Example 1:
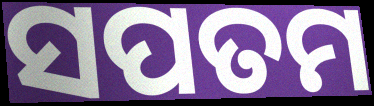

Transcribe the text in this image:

ସପତମ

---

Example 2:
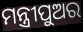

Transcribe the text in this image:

ମନ୍ତ୍ରୀପୁଅର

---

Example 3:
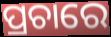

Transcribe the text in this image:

ପ୍ରଚାରେ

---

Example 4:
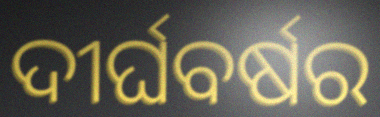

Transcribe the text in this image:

ଦୀର୍ଘବର୍ଷର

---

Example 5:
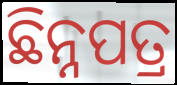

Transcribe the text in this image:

ଛିନ୍ନପତ୍ର